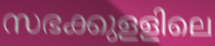
സഭക്കുളളിലെ